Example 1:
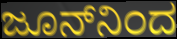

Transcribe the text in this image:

ಜೂನ್‌ನಿಂದ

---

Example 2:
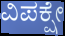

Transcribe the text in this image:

ವಿಪಕ್ಷೇ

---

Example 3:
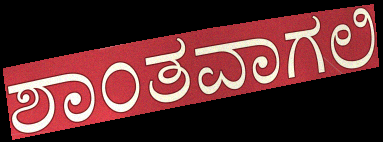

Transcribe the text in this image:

ಶಾಂತವಾಗಲಿ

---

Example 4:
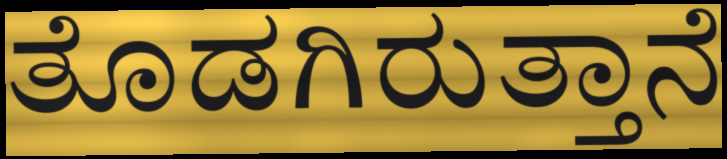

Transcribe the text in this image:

ತೊಡಗಿರುತ್ತಾನೆ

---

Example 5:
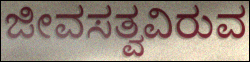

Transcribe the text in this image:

ಜೀವಸತ್ವವಿರುವ